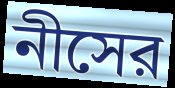
নীসের